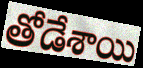
తోడేశాయి